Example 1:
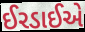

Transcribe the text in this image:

ઈરડાઈએ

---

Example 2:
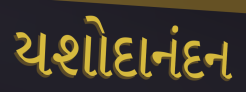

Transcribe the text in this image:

યશોદાનંદન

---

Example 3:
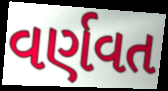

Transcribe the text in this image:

વર્ણવત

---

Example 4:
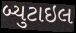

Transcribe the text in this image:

બ્યુટાઇલ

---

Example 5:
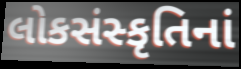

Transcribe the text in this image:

લોકસંસ્કૃતિનાં